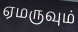
ஏமருவும்